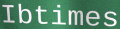
Ibtimes